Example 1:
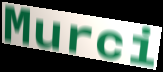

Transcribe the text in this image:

Murci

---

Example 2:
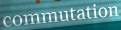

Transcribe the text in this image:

commutation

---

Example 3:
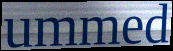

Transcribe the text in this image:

ummed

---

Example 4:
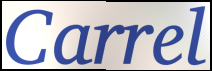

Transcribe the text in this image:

Carrel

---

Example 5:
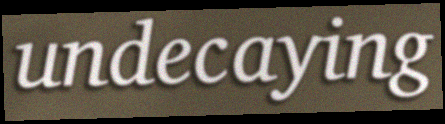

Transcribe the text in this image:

undecaying